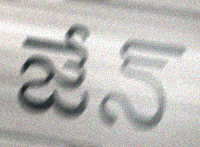
జేన్